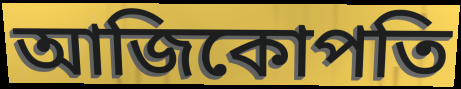
আজিকোপতি